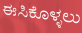
ಈಸಿಕೊಳ್ಳಲು